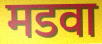
मडवा